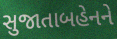
સુજાતાબહેનને